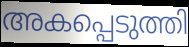
അകപ്പെടുത്തി